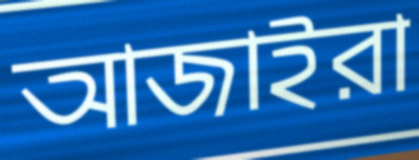
আজাইরা